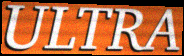
ULTRA